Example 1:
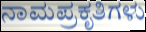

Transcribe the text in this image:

ನಾಮಪ್ರಕೃತಿಗಳು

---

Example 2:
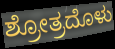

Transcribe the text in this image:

ಶ್ರೋತ್ರದೊಳು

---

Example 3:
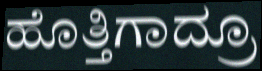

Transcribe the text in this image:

ಹೊತ್ತಿಗಾದ್ರೂ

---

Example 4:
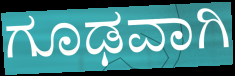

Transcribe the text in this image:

ಗೂಢವಾಗಿ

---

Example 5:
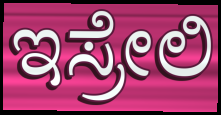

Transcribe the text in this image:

ಇಸ್ರೇಲಿ